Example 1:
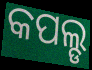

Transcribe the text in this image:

କପଲ୍ଡ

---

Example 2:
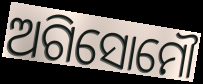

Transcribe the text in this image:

ଅଗିସୋମୌ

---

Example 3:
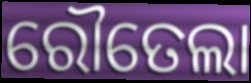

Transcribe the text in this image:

ରୌତେଲା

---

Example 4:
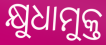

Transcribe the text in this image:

କ୍ଷୁଧାମୁକ୍ତ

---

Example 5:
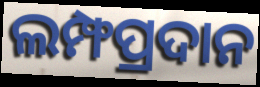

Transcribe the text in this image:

ଲମ୍ଫପ୍ରଦାନ